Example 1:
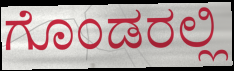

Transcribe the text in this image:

ಗೊಂಡರಲ್ಲಿ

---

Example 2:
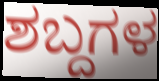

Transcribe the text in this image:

ಶಬ್ದಗಳ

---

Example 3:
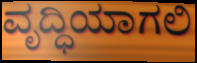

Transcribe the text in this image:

ವೃದ್ಧಿಯಾಗಲಿ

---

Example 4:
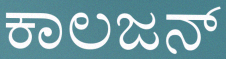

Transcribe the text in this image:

ಕಾಲಜನ್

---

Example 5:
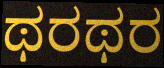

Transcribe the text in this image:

ಥರಥರ